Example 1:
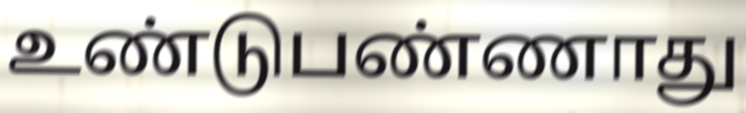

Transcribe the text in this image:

உண்டுபண்ணாது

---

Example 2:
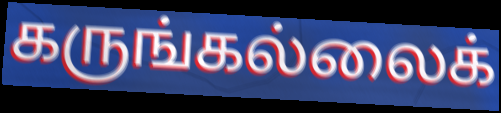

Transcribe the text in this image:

கருங்கல்லைக்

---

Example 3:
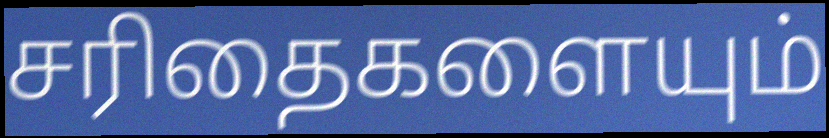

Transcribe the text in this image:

சரிதைகளையும்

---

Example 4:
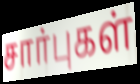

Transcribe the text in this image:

சார்புகள்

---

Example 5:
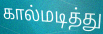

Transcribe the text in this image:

கால்மடித்து